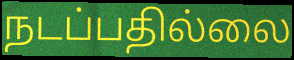
நடப்பதில்லை